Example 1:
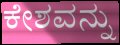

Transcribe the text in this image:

ಕೇಶವನ್ನು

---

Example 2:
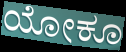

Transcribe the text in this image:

ಯೋಕೂ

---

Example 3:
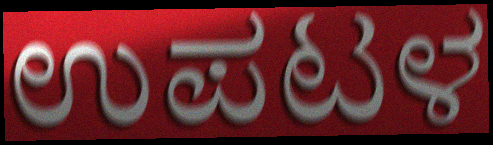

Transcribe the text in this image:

ಉಪಟಳ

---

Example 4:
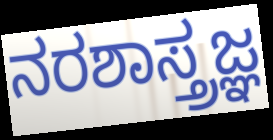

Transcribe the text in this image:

ನರಶಾಸ್ತ್ರಜ್ಞ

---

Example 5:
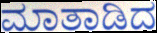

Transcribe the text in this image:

ಮಾತಾಡಿದ